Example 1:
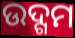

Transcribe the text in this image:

ଉଦ୍ଗମ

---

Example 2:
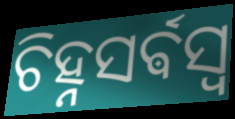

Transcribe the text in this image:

ଚିହ୍ନସର୍ଵସ୍ଵ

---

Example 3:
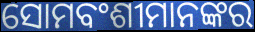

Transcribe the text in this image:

ସୋମବଂଶୀମାନଙ୍କର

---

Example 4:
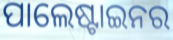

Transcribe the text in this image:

ପାଲେଷ୍ଟାଇନର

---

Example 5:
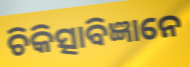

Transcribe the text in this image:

ଚିକିତ୍ସାବିଜ୍ଞାନେ